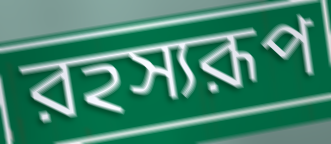
রহস্যরূপ